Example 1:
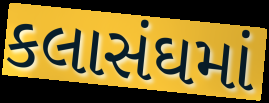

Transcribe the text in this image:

કલાસંઘમાં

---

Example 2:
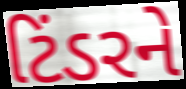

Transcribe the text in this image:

ટિંડરને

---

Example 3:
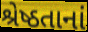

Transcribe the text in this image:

શ્રેષ્ઠતાનાં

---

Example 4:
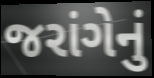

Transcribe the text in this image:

જરાંગેનું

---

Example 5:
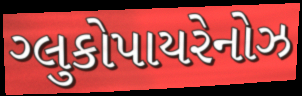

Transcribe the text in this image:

ગ્લુકોપાયરેનોઝ